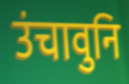
उंचावुनि